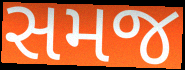
સમજ